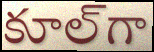
కూల్‌గా